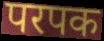
परपक